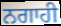
ਨਗਾਹੀ